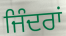
ਜਿੰਦਰਾਂ